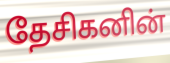
தேசிகனின்